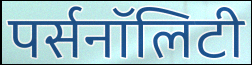
पर्सनॉलिटी